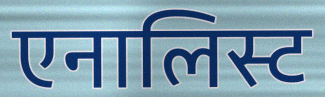
एनालिस्ट